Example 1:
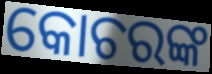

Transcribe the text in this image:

କୋଚରଙ୍କ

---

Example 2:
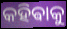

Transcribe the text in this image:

କହିଵାକୁ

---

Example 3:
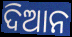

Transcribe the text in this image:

ଦିଆନ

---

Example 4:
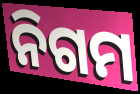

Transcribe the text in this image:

ନିଗମ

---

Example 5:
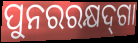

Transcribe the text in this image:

ପୁନରରକ୍ଷଦ୍‌ଗା